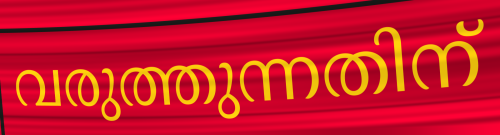
വരുത്തുന്നതിന്